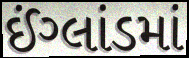
ઈંગ્લાંડમાં